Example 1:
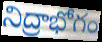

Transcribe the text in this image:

నిద్రాభోగం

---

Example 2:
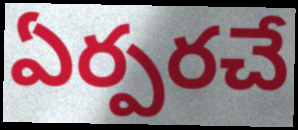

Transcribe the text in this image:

ఏర్పరచే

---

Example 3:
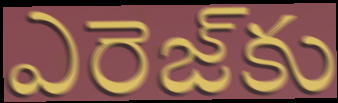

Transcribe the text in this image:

ఎరెజ్‌కు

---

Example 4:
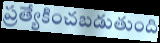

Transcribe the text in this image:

ప్రత్యేకించబడుతుంది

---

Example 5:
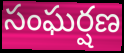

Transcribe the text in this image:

సంఘర్షణ